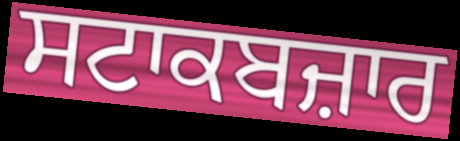
ਸਟਾਕਬਜ਼ਾਰ